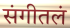
संगीतलं